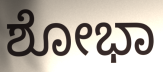
ಶೋಭಾ